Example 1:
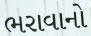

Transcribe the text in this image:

ભરાવાનો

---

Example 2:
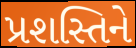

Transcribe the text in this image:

પ્રશસ્તિને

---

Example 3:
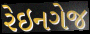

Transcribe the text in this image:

રેઇનગેજ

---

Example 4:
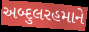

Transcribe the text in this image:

અબ્દુલરહમાને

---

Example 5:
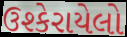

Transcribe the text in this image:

ઉશ્કેરાયેલો